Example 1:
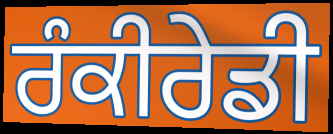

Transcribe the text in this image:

ਰੰਕੀਰੇਡੀ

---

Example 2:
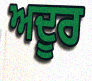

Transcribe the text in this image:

ਅਦੂਰ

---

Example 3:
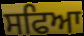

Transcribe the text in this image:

ਸਫਿਆ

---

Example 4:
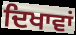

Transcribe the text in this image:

ਦਿਖਾਵਾਂ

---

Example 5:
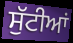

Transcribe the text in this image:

ਸੁੱਟੀਆਂ